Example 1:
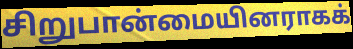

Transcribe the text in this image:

சிறுபான்மையினராகக்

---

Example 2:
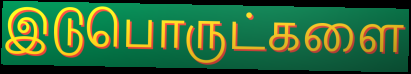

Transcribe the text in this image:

இடுபொருட்களை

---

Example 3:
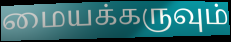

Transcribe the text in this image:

மையக்கருவும்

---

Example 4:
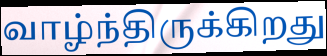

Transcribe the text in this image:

வாழ்ந்திருக்கிறது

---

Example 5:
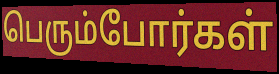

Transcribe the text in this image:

பெரும்போர்கள்